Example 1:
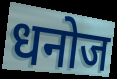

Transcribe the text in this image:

धनोज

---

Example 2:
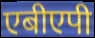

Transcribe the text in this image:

एबीएपी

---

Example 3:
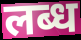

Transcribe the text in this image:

लब्ध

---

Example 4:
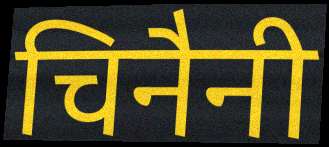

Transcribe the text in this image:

चिनैनी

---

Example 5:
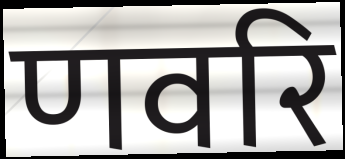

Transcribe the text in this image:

णवरि